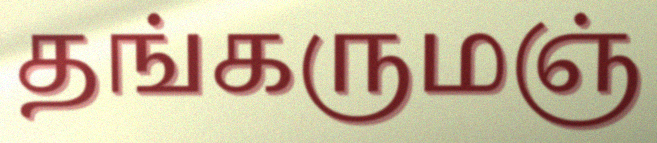
தங்கருமஞ்